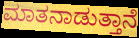
ಮಾತನಾಡುತ್ತಾನೆ